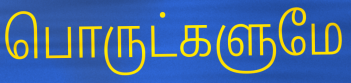
பொருட்களுமே